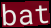
bat